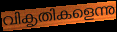
വികൃതികളെന്നു